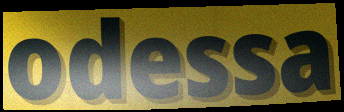
odessa